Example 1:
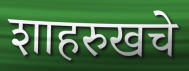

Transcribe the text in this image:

शाहरुखचे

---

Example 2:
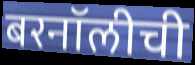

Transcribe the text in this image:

बरनॉलीची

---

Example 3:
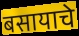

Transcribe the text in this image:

बसायाचे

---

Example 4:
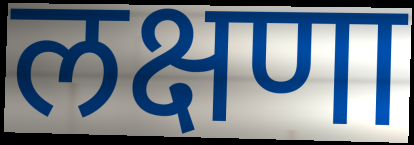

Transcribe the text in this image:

लक्षणा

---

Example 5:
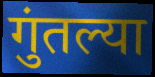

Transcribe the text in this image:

गुंतल्या